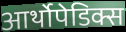
आर्थोपेडिक्स